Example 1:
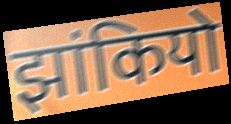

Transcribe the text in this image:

झांकियो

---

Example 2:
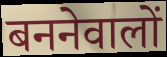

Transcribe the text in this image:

बननेवालों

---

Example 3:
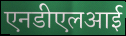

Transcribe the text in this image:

एनडीएलआई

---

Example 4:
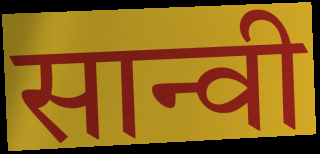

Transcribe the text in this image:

सान्वी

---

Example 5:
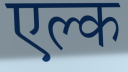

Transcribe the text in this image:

एल्क